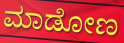
ಮಾಡೋಣ